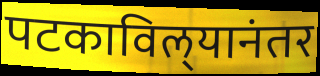
पटकाविल्यानंतर